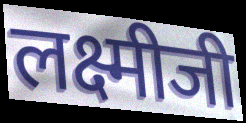
लक्ष्मीजी